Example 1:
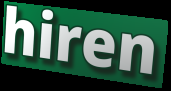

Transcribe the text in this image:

hiren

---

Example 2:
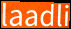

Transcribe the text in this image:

laadli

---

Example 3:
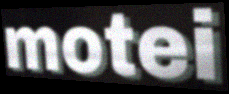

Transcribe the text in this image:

motei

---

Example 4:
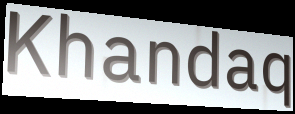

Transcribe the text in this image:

Khandaq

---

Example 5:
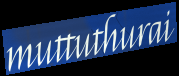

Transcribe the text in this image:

muttuthurai